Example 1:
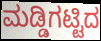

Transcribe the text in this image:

ಮಡ್ಡಿಗಟ್ಟಿದ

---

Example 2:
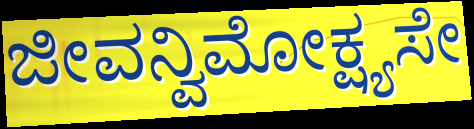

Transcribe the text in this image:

ಜೀವನ್ವಿಮೋಕ್ಷ್ಯಸೇ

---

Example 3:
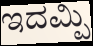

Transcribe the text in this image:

ಇದಮ್ಪಿ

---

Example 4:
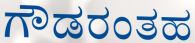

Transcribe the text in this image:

ಗೌಡರಂತಹ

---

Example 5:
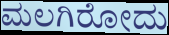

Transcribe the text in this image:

ಮಲಗಿರೋದು